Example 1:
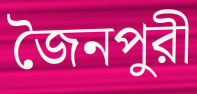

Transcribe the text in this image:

জৈনপুরী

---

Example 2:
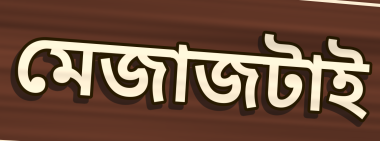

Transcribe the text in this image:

মেজাজটাই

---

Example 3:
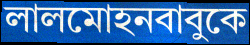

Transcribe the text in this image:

লালমোহনবাবুকে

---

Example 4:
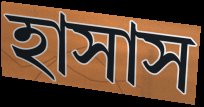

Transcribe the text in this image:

হাসাস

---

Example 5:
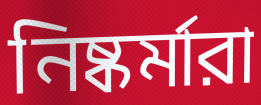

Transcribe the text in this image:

নিষ্কর্মারা